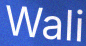
Wali